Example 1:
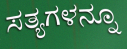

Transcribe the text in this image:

ಸತ್ಯಗಳನ್ನೂ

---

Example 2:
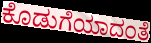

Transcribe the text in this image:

ಕೊಡುಗೆಯಾದಂತೆ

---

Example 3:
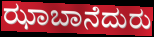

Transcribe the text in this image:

ಝಾಬಾನೆದುರು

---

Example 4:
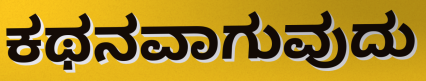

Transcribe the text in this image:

ಕಥನವಾಗುವುದು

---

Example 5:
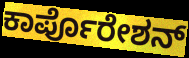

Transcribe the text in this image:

ಕಾರ್ಪೊರೇಶನ್